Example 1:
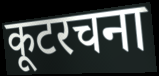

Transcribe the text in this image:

कूटरचना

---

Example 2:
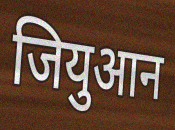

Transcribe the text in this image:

जियुआन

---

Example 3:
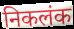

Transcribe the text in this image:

निकलंक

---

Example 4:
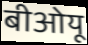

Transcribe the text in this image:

बीओयू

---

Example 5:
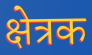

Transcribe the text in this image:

क्षेत्रक